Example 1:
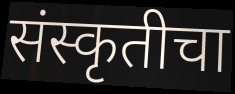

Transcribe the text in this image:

संस्कृतीचा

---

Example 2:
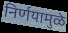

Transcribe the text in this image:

निर्णयामुळे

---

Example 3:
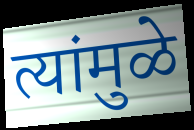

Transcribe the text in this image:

त्यांमुळे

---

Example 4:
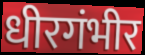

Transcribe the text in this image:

धीरगंभीर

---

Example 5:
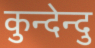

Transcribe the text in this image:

कुन्देन्दु